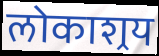
लोकाश्रय